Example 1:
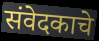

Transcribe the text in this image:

संवेदकाचे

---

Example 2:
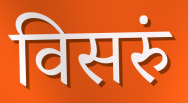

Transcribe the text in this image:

विसरुं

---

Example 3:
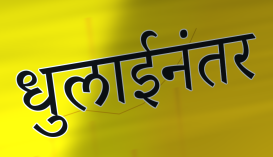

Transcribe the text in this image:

धुलाईनंतर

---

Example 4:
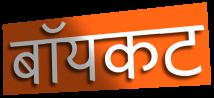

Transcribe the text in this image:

बॉयकट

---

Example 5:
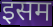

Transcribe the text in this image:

इसम